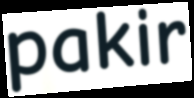
pakir